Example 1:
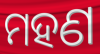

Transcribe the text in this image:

ମହଣ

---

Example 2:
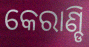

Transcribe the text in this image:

କେରାଣ୍ଡି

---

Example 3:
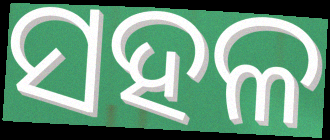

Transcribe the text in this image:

ସହଳ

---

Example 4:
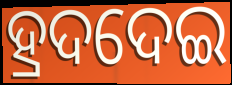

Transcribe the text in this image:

ହ୍ରଦଦେଇ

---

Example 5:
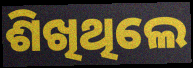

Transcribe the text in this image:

ଶିଖିଥିଲେ